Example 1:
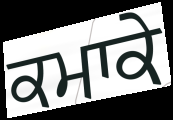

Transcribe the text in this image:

ਕਮਾਕੇ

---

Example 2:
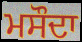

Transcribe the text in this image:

ਮਸੌਦਾ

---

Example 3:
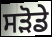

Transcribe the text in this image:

ਸੜੋਡੇ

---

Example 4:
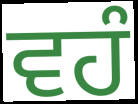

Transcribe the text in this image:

ਵਹੰ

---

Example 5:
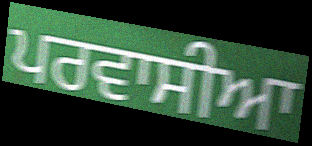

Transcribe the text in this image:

ਪਰਵਾਸੀਆ